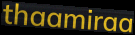
thaamiraa